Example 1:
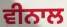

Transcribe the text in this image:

ਵੀਨਾਲ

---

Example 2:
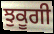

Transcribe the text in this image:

ਝੁਕੂਗੀ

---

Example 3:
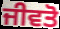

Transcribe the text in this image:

ਜੀਵਤੋ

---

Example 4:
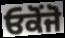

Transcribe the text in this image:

ਓਕੋਂਜੋ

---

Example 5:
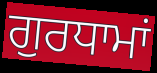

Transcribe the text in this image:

ਗੁਰਧਾਮਾਂ